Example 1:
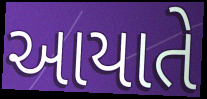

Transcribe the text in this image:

આયાતે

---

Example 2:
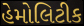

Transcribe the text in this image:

હેમોલિટીક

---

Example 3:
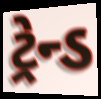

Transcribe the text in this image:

ટ્રેન્ડ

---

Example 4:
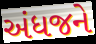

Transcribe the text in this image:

અંધજને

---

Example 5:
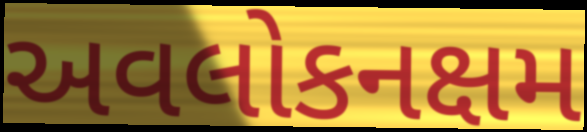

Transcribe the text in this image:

અવલોકનક્ષમ